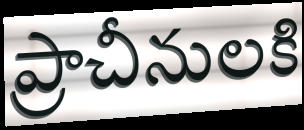
ప్రాచీనులకి